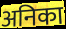
अनिका